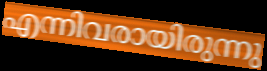
എന്നിവരായിരുന്നു